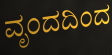
ವೃಂದದಿಂದ